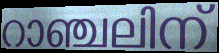
റാഞ്ചലിന്